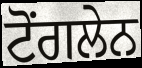
ਟੋਂਗਲੇਨ